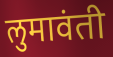
लुमावंती